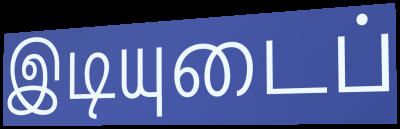
இடியுடைப்